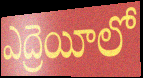
ఎద్రెయీలో